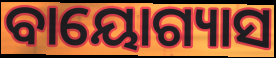
ବାୟୋଗ୍ୟାସ